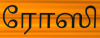
ரோஸி